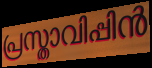
പ്രസ്താവിപ്പിൻ